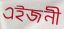
এইজনী